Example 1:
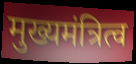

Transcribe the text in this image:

मुख्यमंत्रित्व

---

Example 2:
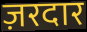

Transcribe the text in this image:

ज़रदार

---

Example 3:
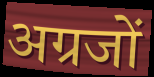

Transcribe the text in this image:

अग्रजों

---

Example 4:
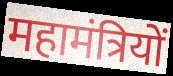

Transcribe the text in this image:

महामंत्रियों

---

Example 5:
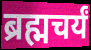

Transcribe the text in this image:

ब्रह्मचर्यं